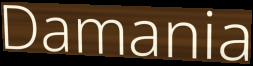
Damania